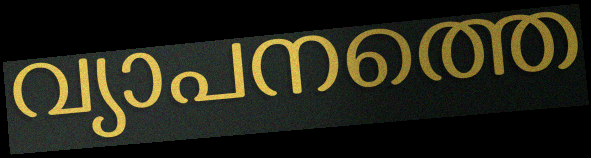
വ്യാപനത്തെ